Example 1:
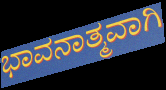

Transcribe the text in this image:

ಭಾವನಾತ್ಮವಾಗಿ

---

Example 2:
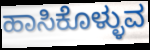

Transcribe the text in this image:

ಹಾಸಿಕೊಳ್ಳುವ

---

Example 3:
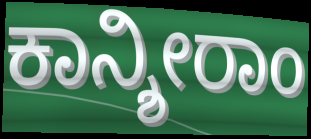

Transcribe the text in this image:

ಕಾನ್ಶೀರಾಂ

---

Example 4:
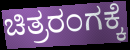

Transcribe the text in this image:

ಚಿತ್ರರಂಗಕ್ಕೆ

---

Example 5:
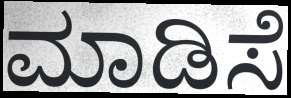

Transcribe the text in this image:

ಮಾಡಿಸೆ